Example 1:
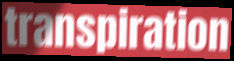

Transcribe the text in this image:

transpiration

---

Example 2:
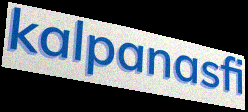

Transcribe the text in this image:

kalpanasfi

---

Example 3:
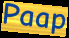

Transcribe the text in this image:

Paap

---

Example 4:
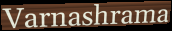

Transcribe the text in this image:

Varnashrama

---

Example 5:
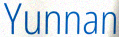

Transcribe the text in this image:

Yunnan